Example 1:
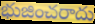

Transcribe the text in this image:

భుజించరాదు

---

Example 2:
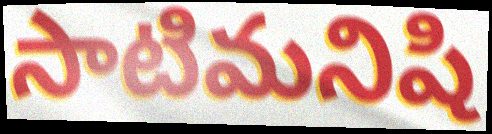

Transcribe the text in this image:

సాటిమనిషి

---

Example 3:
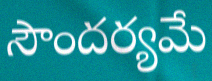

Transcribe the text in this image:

సౌందర్యమే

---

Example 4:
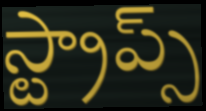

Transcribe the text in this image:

స్ట్రాప్స్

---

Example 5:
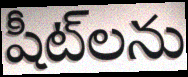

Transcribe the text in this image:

షీట్‌లను